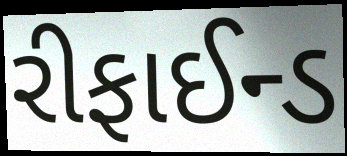
રીફાઈન્ડ